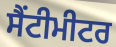
ਸੈਂਟੀਮੀਟਰ